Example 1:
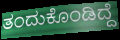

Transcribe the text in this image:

ತಂದುಕೊಂಡಿದ್ದೆ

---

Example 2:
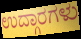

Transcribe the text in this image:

ಉದ್ಗಾರಗಳು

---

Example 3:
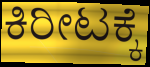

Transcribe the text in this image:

ಕಿರೀಟಕ್ಕೆ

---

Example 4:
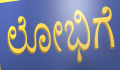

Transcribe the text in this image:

ಲೋಭಿಗೆ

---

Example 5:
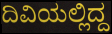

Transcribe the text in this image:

ದಿವಿಯಲ್ಲಿದ್ದ